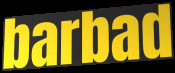
barbad